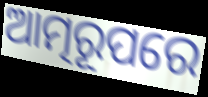
ଆତ୍ମରୂପରେ